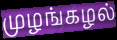
முழங்கழல்